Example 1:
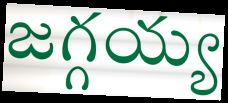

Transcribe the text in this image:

జగ్గయ్య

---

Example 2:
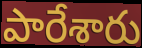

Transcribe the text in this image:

పారేశారు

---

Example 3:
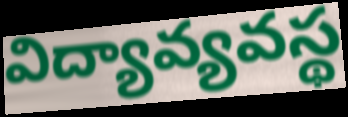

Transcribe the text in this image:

విద్యావ్యవస్థ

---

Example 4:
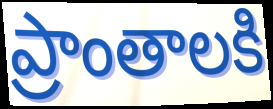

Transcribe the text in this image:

ప్రాంతాలకి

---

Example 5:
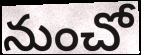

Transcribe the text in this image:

నుంచో